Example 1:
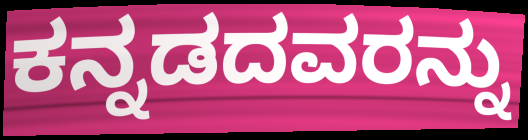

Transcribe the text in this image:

ಕನ್ನಡದವರನ್ನು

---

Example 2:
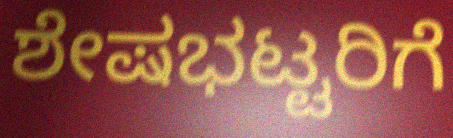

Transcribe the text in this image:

ಶೇಷಭಟ್ಟರಿಗೆ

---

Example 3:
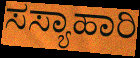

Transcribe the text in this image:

ಸಸ್ಯಾಹಾರಿ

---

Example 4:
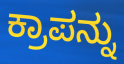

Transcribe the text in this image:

ಕ್ರಾಪನ್ನು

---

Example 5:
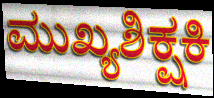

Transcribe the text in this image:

ಮುಖ್ಯಶಿಕ್ಷಕಿ